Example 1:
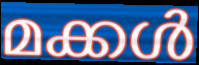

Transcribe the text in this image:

മക്കൾ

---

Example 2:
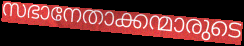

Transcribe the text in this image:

സഭാനേതാക്കന്മാരുടെ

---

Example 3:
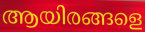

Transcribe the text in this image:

ആയിരങ്ങളെ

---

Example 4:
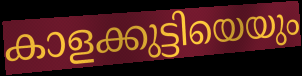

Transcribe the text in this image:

കാളക്കുട്ടിയെയും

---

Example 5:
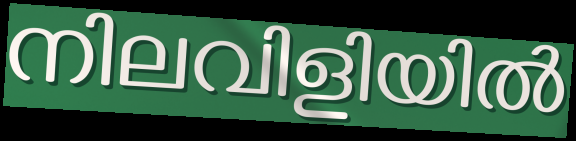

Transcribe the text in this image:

നിലവിളിയിൽ